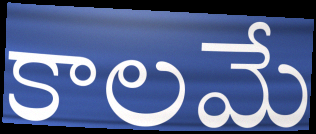
కాలమే